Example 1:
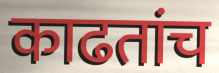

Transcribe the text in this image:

काढतांच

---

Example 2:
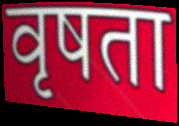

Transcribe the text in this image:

वृषता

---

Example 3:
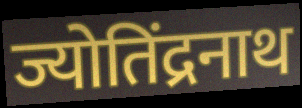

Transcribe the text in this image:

ज्योतिंद्रनाथ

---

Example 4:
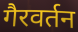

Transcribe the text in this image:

गैरवर्तन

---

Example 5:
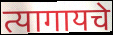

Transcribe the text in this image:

त्यागायचे